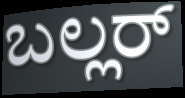
ಬಲ್ಲರ್